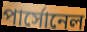
পার্সোনেল